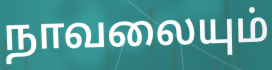
நாவலையும்